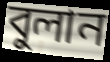
বুলান